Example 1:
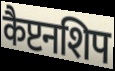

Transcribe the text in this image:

कैप्टनशिप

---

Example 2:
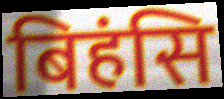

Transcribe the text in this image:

बिहंसि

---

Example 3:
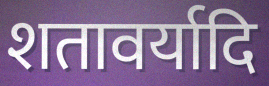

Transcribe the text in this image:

शतावर्यादि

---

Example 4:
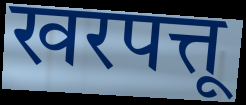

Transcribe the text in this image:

खरपत्तू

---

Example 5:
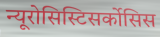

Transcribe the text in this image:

न्यूरोसिस्टिसर्कोसिस